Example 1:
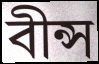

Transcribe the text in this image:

বীন্স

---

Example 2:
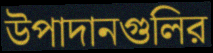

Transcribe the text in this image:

উপাদানগুলির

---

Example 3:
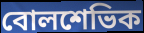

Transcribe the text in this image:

বোলশেভিক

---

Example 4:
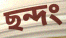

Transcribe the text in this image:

ছন্দং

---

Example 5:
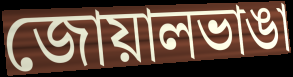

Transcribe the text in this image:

জোয়ালভাঙা